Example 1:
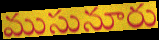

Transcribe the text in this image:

ముసునూరు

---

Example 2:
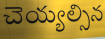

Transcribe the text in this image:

చెయ్యల్సిన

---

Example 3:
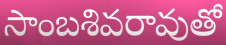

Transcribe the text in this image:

సాంబశివరావుతో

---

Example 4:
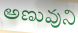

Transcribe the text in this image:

అణువుని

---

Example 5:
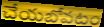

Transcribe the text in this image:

చేయబోవటం